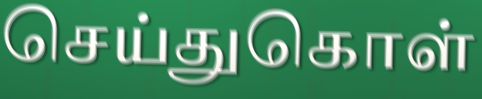
செய்துகொள்